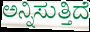
ಅನ್ನಿಸುತ್ತಿದೆ